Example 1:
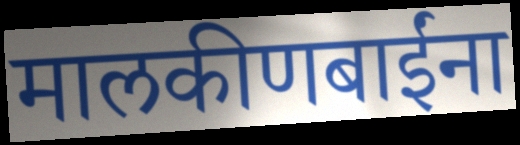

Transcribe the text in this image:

मालकीणबाईंना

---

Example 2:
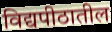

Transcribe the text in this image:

विद्यपीठातील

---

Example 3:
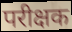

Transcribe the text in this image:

परीक्षक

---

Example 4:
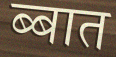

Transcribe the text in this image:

ब्बात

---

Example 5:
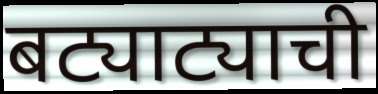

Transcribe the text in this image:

बट्याट्याची